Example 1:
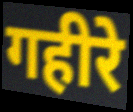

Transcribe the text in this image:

गहीरे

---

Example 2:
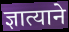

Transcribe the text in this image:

ज्ञात्याने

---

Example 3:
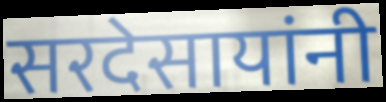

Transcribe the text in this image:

सरदेसायांनी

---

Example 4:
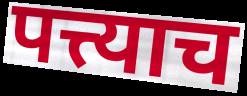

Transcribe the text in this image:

पत्त्याच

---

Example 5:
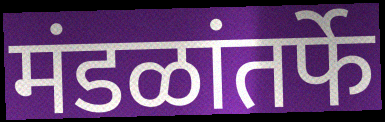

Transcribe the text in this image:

मंडळांतर्फे